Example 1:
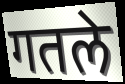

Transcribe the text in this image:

गतले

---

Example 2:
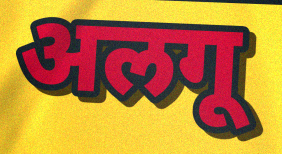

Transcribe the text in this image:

अलगू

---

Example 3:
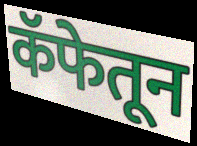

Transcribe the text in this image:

कॅफेतून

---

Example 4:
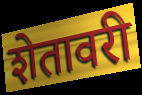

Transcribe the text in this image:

शेतावरी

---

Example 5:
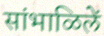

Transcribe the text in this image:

सांभाळिलें